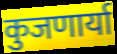
कुजणार्या